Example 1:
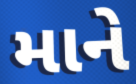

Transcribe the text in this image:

માને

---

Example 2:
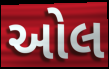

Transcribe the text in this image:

ઓલ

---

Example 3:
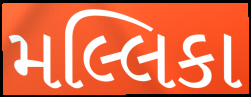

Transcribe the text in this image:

મલ્લિકા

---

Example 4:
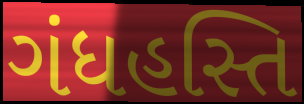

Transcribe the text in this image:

ગંધહસ્તિ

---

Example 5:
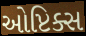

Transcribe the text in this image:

ઓપ્ટિક્સ